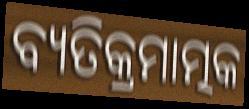
ବ୍ୟତିକ୍ରମାତ୍ମକ